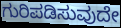
ಗುರಿಪಡಿಸುವುದೇ